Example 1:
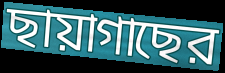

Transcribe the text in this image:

ছায়াগাছের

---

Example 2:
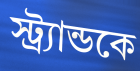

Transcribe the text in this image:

স্ট্র্যান্ডকে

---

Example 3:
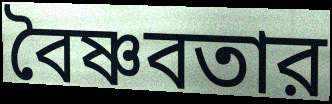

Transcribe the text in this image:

বৈষ্ণবতার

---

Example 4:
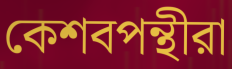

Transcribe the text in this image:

কেশবপন্থীরা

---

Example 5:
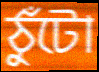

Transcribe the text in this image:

ঠুঁটো